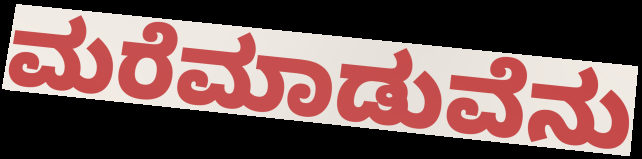
ಮರೆಮಾಡುವೆನು